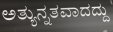
ಅತ್ಯುನ್ನತವಾದದ್ದು